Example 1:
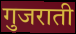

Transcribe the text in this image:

गुजराती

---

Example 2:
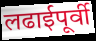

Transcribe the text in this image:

लढाईपूर्वी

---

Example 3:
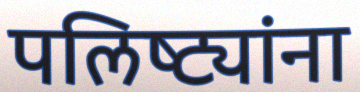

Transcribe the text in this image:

पलिष्ट्यांना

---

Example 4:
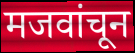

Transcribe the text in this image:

मजवांचून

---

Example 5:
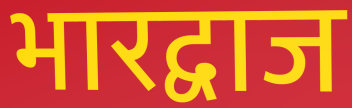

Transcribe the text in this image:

भारद्वाज